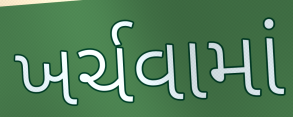
ખર્ચવામાં